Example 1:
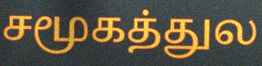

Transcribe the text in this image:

சமூகத்துல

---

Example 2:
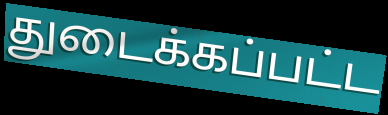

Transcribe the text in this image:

துடைக்கப்பட்ட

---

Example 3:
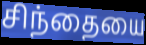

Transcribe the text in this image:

சிந்தையை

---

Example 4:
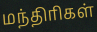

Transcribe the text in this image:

மந்திரிகள்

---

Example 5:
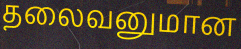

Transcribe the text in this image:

தலைவனுமான